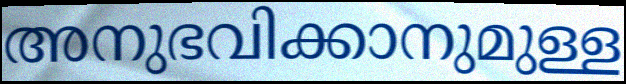
അനുഭവിക്കാനുമുള്ള